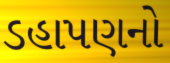
ડહાપણનો